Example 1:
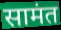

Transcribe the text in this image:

सामंत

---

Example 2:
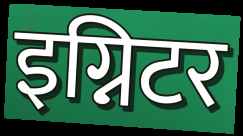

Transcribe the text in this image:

इग्निटर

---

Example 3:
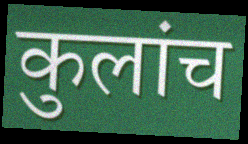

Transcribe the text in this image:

कुलांच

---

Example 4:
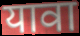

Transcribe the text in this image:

यावा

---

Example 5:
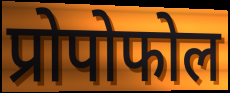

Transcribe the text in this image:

प्रोपोफोल